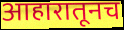
आहारातूनच